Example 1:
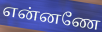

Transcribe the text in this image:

என்னணே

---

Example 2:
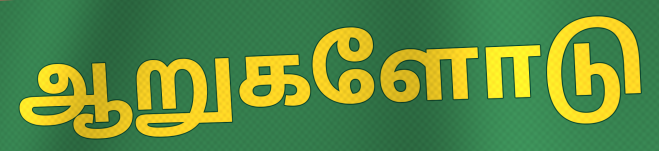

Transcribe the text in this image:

ஆறுகளோடு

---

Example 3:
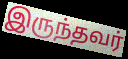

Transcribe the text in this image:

இருந்தவர்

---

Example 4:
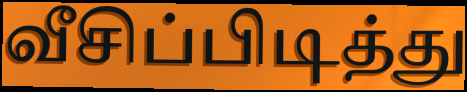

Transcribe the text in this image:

வீசிப்பிடித்து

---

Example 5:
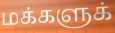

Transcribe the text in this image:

மக்களுக்